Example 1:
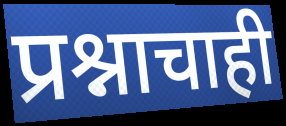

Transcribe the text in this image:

प्रश्नाचाही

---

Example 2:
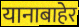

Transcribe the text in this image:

यानाबाहेर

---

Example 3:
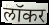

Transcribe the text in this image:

लॉकर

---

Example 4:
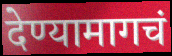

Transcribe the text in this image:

देण्यामागचं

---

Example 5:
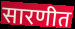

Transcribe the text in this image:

सारणीत